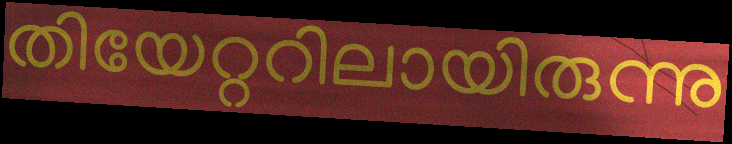
തിയേറ്ററിലായിരുന്നു